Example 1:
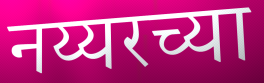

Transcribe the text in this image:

नय्यरच्या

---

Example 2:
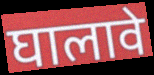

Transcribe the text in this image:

घालावे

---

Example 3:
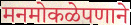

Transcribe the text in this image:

मनमोकळेपणाने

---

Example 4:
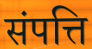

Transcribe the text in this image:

संपत्ति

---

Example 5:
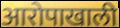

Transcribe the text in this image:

आरोपाखाली